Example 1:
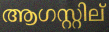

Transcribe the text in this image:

ആഗസ്റ്റില്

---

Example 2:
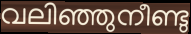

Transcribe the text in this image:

വലിഞ്ഞുനീണ്ടു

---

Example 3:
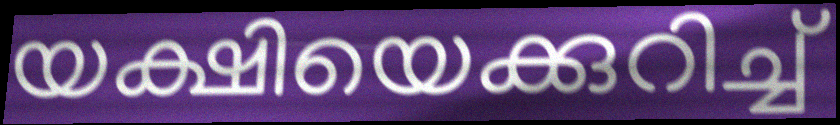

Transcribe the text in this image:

യക്ഷിയെക്കുറിച്ച്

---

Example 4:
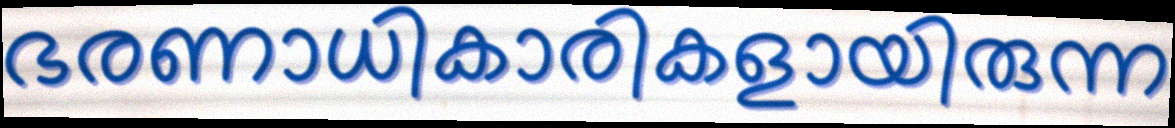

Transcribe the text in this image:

ഭരണാധികാരികളായിരുന്ന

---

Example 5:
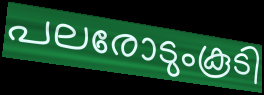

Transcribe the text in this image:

പലരോടുംകൂടി